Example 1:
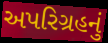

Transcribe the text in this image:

અપરિગ્રહનું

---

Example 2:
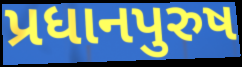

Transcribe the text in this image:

પ્રધાનપુરુષ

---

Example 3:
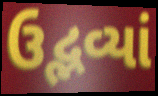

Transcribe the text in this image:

ઉદ્ભવ્યાં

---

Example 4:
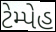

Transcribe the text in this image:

ટેમ્પેહ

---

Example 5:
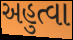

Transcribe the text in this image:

અહુત્વા